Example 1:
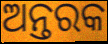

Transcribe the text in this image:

ଅନ୍ତରକ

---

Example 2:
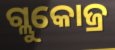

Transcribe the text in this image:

ଗ୍ଲୁକୋଜ୍ର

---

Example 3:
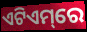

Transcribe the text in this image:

ଏଟିଏମ୍‌ରେ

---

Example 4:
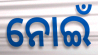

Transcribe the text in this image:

ନୋଇଁ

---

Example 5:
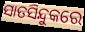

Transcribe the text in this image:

ସାତସିନ୍ଦୁକରେ